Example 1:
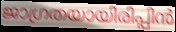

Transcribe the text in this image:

ജാഗ്രതയായിരിപ്പിൻ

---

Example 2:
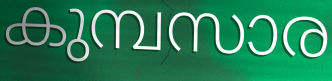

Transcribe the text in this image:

കുമ്പസാര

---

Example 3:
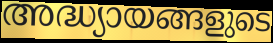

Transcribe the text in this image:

അദ്ധ്യായങ്ങളുടെ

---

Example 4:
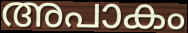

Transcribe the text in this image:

അപാകം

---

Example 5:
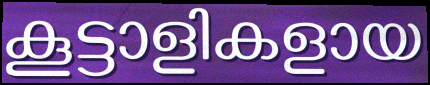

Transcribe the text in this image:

കൂട്ടാളികളായ